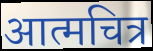
आत्मचित्र